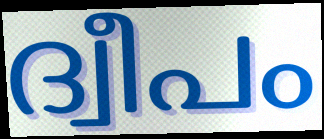
ദ്വീപം